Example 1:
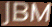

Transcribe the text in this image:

JBM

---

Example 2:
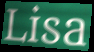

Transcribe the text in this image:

Lisa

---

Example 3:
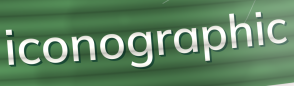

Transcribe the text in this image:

iconographic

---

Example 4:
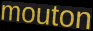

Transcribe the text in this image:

mouton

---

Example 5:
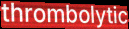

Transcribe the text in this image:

thrombolytic